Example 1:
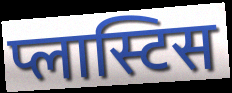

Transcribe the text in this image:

प्लास्टिस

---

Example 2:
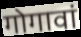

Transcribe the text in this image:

गोगावां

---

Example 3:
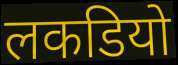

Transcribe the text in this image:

लकडियो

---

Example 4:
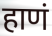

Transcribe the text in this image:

हाणं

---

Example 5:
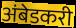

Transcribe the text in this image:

अंबेडकरी